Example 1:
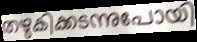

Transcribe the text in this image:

തഴുകിക്കടന്നുപോയി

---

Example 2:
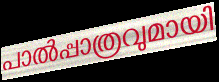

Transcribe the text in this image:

പാൽപ്പാത്രവുമായി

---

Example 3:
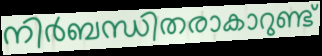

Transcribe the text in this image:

നിർബന്ധിതരാകാറുണ്ട്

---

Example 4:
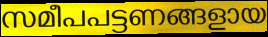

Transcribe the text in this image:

സമീപപട്ടണങ്ങളായ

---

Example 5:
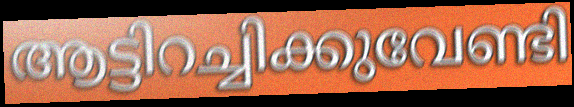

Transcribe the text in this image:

ആട്ടിറച്ചിക്കുവേണ്ടി